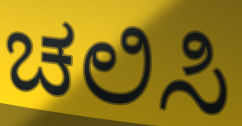
ಚಲಿಸಿ